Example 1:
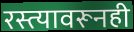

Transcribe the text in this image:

रस्त्यावरूनही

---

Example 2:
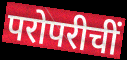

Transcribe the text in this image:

परोपरीचीं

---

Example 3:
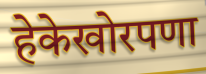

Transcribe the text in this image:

हेकेखोरपणा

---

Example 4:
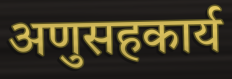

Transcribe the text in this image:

अणुसहकार्य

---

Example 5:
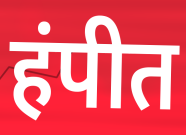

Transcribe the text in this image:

हंपीत